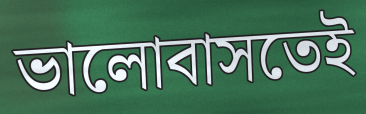
ভালোবাসতেই